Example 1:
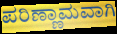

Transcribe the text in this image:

ಪರಿಣ್ಣಾಮವಾಗಿ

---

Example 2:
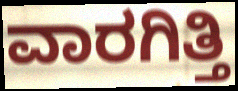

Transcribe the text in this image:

ವಾರಗಿತ್ತಿ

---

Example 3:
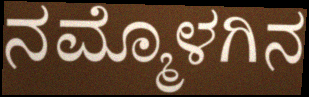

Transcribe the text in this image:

ನಮ್ಮೊಳಗಿನ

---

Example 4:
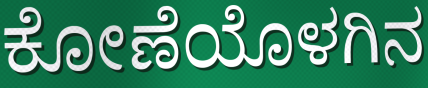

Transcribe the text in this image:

ಕೋಣೆಯೊಳಗಿನ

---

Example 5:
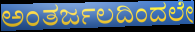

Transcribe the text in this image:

ಅಂತರ್ಜಲದಿಂದಲೇ